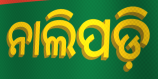
ନାଲିପଡ଼ି